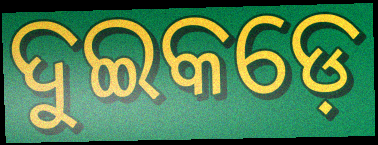
ଦୁଇକଡ଼େ